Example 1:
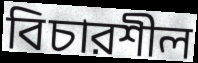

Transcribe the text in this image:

বিচারশীল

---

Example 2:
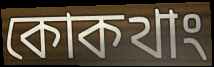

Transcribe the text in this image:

কোকথাং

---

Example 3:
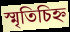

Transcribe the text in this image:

স্মৃতিচিহ্ন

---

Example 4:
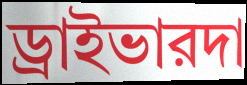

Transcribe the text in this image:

ড্রাইভারদা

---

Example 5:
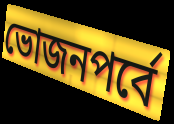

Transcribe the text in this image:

ভোজনপর্বে